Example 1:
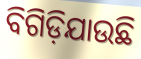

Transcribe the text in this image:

ବିଗିଡ଼ିଯାଉଛି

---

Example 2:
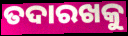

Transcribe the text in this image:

ତଦାରଖକୁ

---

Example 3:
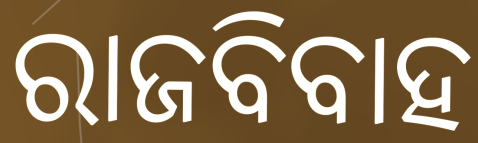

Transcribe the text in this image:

ରାଜବିବାହ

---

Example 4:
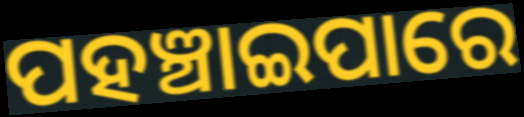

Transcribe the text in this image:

ପହଞ୍ଚାଇପାରେ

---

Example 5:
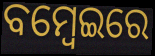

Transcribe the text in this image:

ବମ୍ବେଇରେ